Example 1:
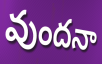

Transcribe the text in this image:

వుందనా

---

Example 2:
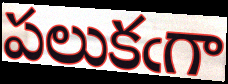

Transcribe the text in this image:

పలుకఁగా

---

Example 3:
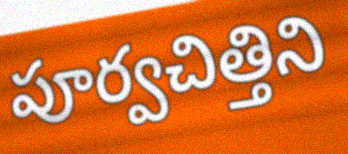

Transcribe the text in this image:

పూర్వచిత్తిని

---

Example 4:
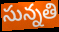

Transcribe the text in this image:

సున్నతి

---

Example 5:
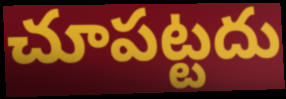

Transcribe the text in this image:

చూపట్టదు